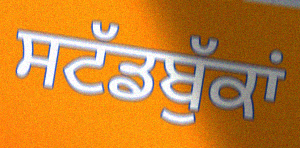
ਸਟੱਡਬੁੱਕਾਂ